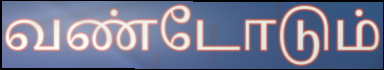
வண்டோடும்